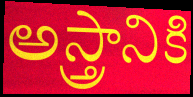
అస్త్రానికి